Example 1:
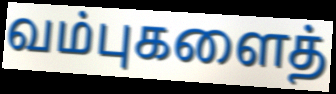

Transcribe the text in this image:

வம்புகளைத்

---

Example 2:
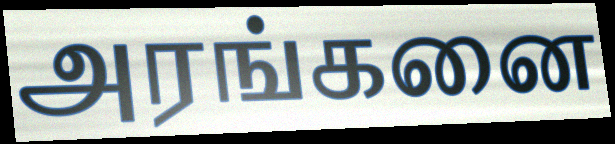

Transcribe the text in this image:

அரங்கனை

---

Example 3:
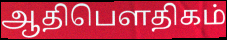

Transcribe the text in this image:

ஆதிபௌதிகம்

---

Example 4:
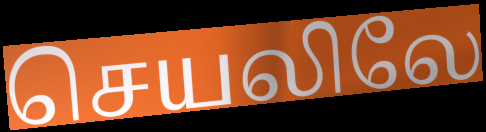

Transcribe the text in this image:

செயலிலே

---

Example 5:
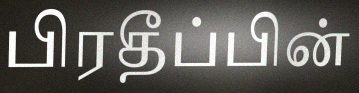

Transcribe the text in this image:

பிரதீப்பின்